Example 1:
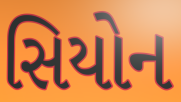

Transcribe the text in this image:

સિયોન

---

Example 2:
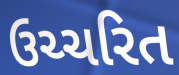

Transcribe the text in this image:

ઉચ્ચરિત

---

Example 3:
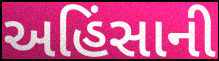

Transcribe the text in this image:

અહિંસાની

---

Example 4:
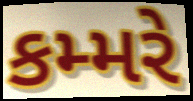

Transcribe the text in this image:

કમ્મરે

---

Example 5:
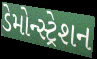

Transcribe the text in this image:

ડેમોન્સ્ટ્રેશન